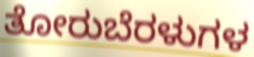
ತೋರುಬೆರಳುಗಳ